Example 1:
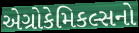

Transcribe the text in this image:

એગ્રોકેમિકલ્સનો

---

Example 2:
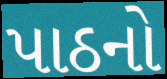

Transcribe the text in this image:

પાઠનો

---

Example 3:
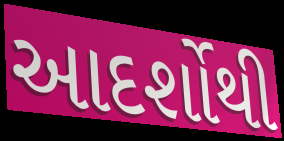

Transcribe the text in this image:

આદર્શોથી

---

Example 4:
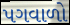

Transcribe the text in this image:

પગવાળો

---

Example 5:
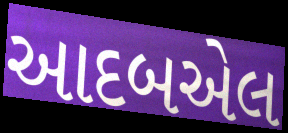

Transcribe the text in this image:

આદબએલ